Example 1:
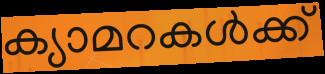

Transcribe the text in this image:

ക്യാമറകൾക്ക്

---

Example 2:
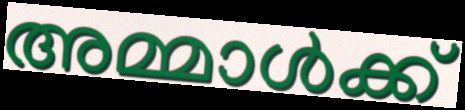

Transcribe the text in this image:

അമ്മാൾക്ക്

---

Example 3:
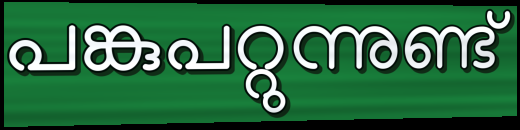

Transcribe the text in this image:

പങ്കുപറ്റുന്നുണ്ട്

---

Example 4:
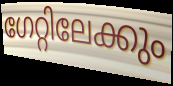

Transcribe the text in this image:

ഗേറ്റിലേക്കും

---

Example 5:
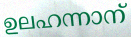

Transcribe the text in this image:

ഉലഹന്നാന്